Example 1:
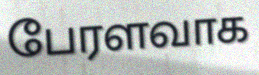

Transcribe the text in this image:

பேரளவாக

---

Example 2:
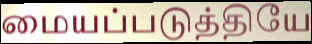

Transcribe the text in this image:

மையப்படுத்தியே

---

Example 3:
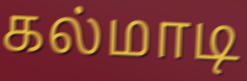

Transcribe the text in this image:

கல்மாடி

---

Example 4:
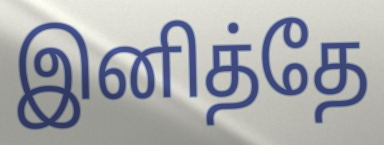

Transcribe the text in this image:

இனித்தே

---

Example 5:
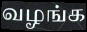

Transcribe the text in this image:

வழங்க